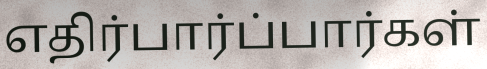
எதிர்பார்ப்பார்கள்